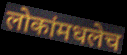
लोकांमधलेच